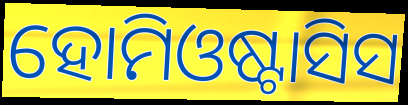
ହୋମିଓଷ୍ଟାସିସ